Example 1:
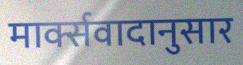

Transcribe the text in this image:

मार्क्सवादानुसार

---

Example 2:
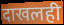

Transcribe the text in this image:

दाखलही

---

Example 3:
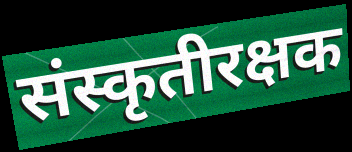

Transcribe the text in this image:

संस्कृतीरक्षक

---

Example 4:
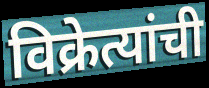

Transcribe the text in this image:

विक्रेत्यांची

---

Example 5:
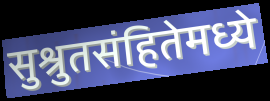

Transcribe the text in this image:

सुश्रुतसंहितेमध्ये